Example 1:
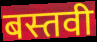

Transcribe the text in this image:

बस्तवी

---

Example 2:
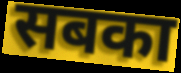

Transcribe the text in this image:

सबका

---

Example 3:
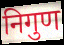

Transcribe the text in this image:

निगुण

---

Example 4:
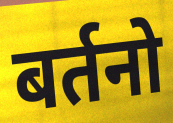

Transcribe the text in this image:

बर्तनो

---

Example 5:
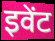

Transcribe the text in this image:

इवेंट